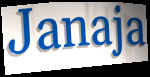
Janaja